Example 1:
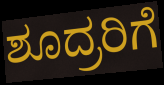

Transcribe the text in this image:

ಶೂದ್ರರಿಗೆ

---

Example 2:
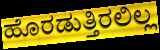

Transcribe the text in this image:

ಹೊರಡುತ್ತಿರಲಿಲ್ಲ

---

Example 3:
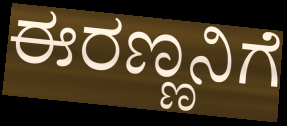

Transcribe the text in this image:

ಈರಣ್ಣನಿಗೆ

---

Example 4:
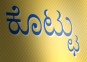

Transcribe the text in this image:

ಕೊಟ್ಟು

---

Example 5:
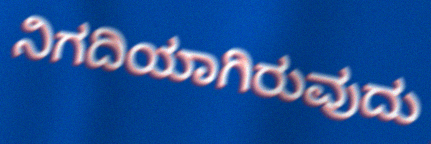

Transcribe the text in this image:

ನಿಗದಿಯಾಗಿರುವುದು